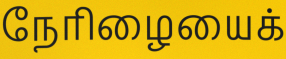
நேரிழையைக்